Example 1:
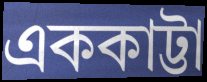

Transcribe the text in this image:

এককাট্টা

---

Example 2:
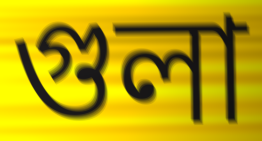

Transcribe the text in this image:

গুলা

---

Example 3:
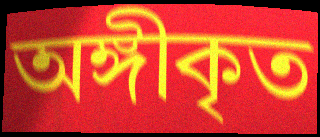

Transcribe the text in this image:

অঙ্গীকৃত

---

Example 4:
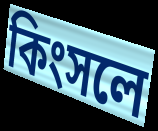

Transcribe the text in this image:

কিংসলে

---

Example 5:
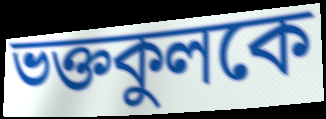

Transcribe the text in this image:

ভক্তকুলকে